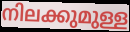
നിലക്കുമുള്ള